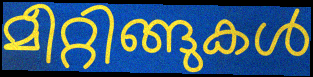
മീറ്റിങ്ങുകൾ